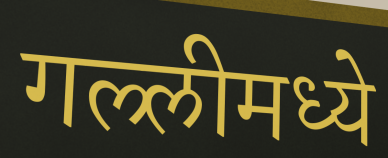
गल्लीमध्ये